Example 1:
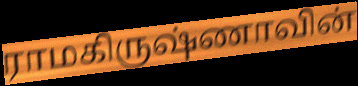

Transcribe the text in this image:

ராமகிருஷ்ணாவின்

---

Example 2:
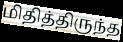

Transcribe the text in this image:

மிதித்திருந்த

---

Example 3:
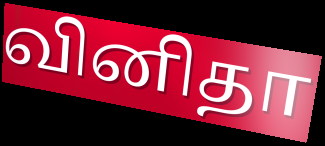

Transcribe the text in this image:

வினிதா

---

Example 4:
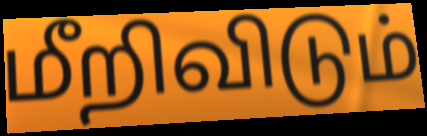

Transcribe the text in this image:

மீறிவிடும்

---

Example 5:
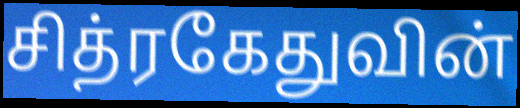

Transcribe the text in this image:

சித்ரகேதுவின்